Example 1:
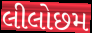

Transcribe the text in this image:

લીલોછમ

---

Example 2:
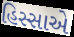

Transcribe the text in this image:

હિસ્સાએ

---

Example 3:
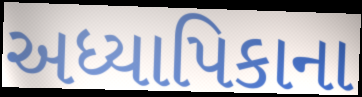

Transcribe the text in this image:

અધ્યાપિકાના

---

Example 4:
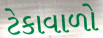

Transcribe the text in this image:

ટેકાવાળો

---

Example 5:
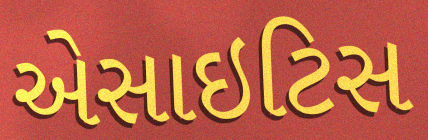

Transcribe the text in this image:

એસાઇટિસ